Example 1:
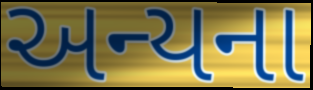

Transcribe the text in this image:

અન્યના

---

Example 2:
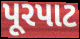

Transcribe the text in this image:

પૂરપાટ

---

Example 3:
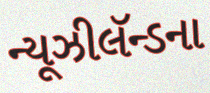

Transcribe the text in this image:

ન્યૂઝીલૅન્ડના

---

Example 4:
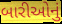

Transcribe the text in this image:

બારીઓનું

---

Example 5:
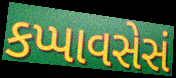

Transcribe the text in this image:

કપ્પાવસેસં